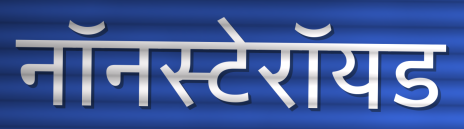
नॉनस्टेरॉयड